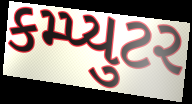
કમ્પ્યુટર